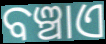
ବଞ୍ଚାଏ